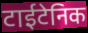
टाईटेनिक